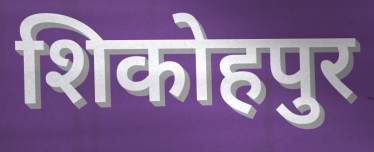
शिकोहपुर